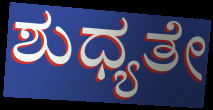
ಶುಧ್ಯತೇ